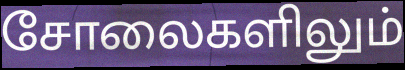
சோலைகளிலும்